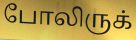
போலிருக்